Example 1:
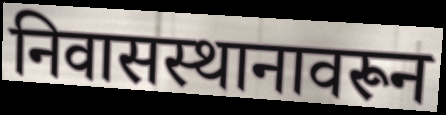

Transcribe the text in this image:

निवासस्थानावरून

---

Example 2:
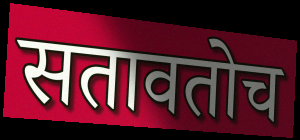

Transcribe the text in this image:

सतावतोच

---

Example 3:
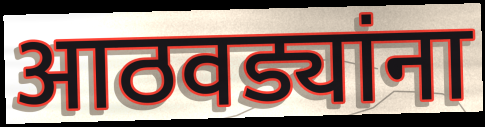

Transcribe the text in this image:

आठवड्यांना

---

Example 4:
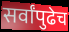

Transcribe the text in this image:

सर्वांपुढेच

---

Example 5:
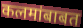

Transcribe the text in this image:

कलमांबाबत